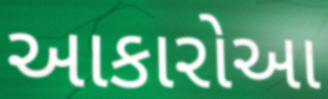
આકારોઆ